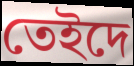
তেইদে